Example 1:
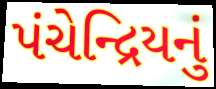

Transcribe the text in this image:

પંચેન્દ્રિયનું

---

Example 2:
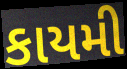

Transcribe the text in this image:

કાયમી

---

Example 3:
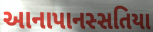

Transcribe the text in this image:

આનાપાનસ્સતિયા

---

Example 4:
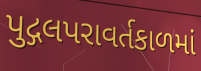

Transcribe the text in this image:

પુદ્ગલપરાવર્તકાળમાં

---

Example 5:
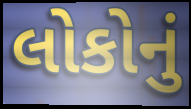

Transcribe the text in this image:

લોકોનું